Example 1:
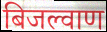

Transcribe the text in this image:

बिजल्वाण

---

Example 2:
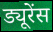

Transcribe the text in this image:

ड्यूरेंस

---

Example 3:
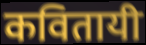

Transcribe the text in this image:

कवितायी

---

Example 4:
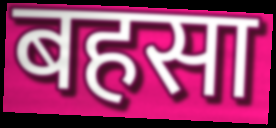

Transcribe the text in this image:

बहसा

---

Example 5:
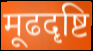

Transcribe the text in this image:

मूढदृष्टि